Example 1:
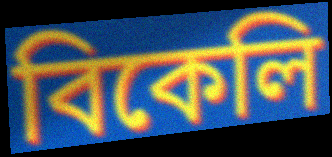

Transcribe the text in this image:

বিকেলি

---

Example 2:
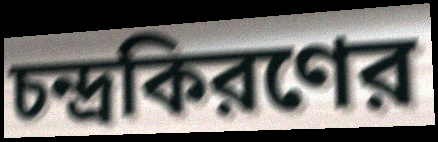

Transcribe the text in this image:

চন্দ্রকিরণের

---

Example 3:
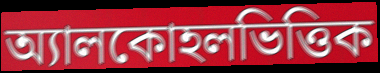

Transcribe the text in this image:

অ্যালকোহলভিত্তিক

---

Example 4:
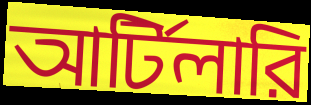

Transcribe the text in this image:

আর্টিলারি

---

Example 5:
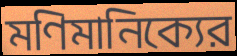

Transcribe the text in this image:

মণিমানিক্যের